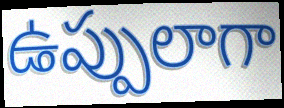
ఉప్పులాగా